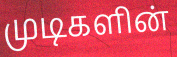
முடிகளின்